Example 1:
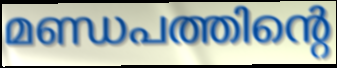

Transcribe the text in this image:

മണ്ഡപത്തിന്റെ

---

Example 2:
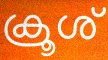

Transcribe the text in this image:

ക്രൂശ്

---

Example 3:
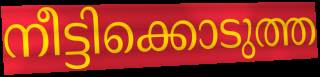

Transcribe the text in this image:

നീട്ടിക്കൊടുത്ത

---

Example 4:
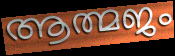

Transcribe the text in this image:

ആത്മജം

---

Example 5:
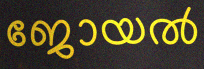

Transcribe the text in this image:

ജോയൽ